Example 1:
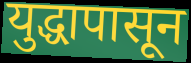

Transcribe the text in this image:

युद्धापासून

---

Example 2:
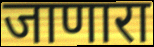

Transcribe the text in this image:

जाणारा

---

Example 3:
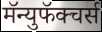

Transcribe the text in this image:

मॅन्युफॅक्चर्स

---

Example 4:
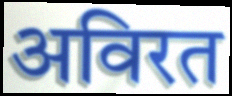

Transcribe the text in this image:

अविरत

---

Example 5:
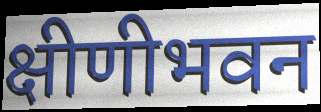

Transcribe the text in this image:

क्षीणीभवन